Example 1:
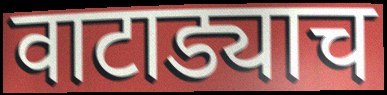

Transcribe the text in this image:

वाटाड्याच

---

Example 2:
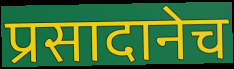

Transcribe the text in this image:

प्रसादानेच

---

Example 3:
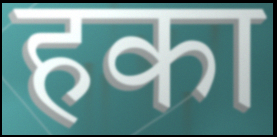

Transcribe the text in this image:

हका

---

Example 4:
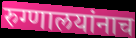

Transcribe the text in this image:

रुग्णालयांनाच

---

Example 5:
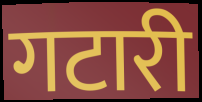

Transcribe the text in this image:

गटारी